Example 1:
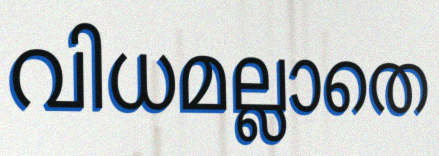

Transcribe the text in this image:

വിധമല്ലാതെ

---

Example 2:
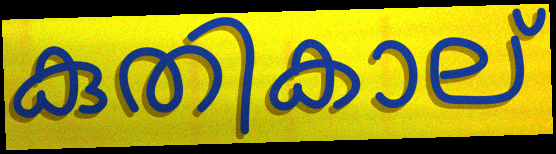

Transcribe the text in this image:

കുതികാല്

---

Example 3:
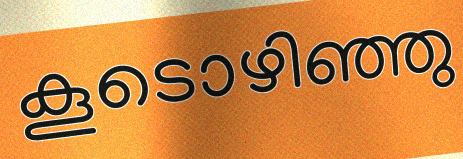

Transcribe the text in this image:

കൂടൊഴിഞ്ഞു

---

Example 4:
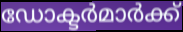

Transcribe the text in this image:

ഡോക്ടർമാർക്ക്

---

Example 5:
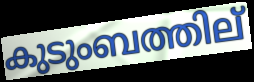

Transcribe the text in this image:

കുടുംബത്തില്